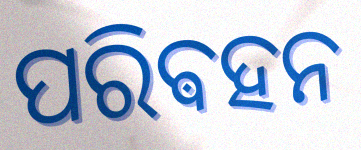
ପରିଵହନ